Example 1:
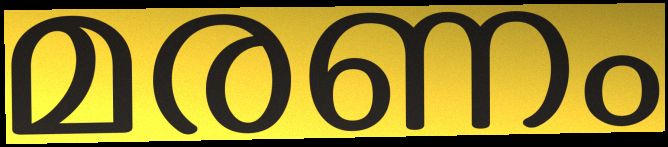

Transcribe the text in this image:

മരണം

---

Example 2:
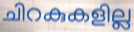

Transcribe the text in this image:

ചിറകുകളില്ല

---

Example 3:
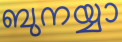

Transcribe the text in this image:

ബുനയ്യാ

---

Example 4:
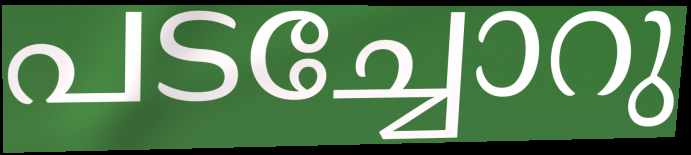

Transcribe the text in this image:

പടച്ചോറു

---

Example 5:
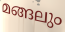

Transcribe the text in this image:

മങ്ങലും